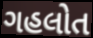
ગહલોત